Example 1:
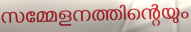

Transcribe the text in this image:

സമ്മേളനത്തിന്റെയും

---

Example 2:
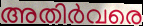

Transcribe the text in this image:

അതിർവരെ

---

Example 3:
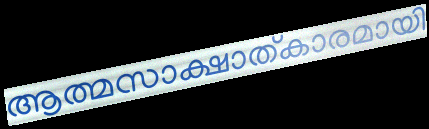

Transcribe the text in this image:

ആത്മസാക്ഷാത്കാരമായി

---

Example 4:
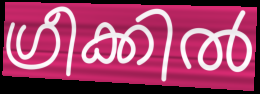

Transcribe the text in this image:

ഗ്രീക്കിൽ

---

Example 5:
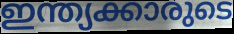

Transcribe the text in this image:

ഇന്ത്യക്കാരുടെ